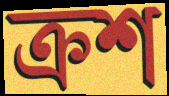
ক্রশ